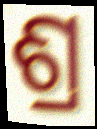
ଶ୍ର